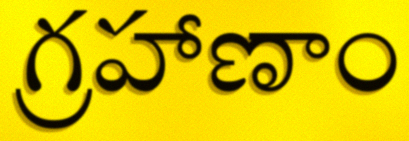
గ్రహాణాం